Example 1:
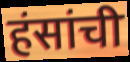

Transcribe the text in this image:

हंसांची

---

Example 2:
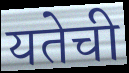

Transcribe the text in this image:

यतेची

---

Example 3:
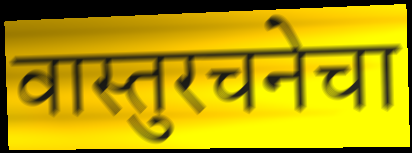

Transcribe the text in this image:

वास्तुरचनेचा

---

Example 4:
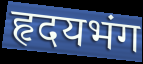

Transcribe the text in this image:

हृदयभंग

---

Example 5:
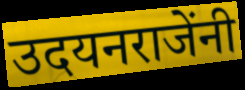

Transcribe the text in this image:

उदयनराजेंनी